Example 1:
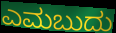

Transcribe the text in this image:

ಎಮಬುದು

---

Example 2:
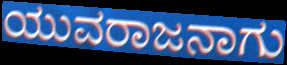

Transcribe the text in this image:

ಯುವರಾಜನಾಗು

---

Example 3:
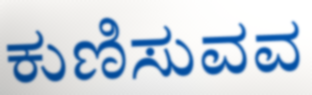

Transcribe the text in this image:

ಕುಣಿಸುವವ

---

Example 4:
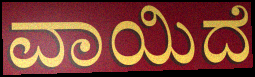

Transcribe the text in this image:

ವಾಯಿದೆ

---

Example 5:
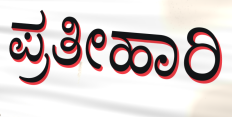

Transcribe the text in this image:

ಪ್ರತೀಹಾರಿ